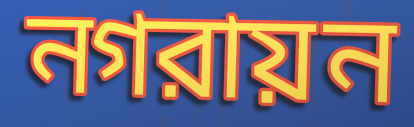
নগরায়ন